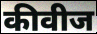
कीवीज